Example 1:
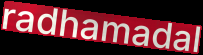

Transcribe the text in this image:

radhamadal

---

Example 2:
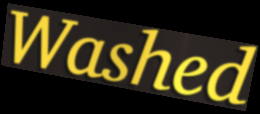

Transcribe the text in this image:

Washed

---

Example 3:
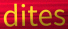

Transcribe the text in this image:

dites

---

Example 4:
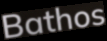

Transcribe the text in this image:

Bathos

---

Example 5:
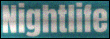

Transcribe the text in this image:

Nightlife